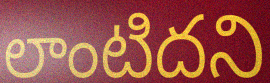
లాంటిదని